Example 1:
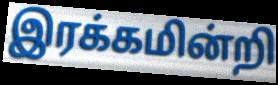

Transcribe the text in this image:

இரக்கமின்றி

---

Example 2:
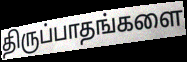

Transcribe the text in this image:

திருப்பாதங்களை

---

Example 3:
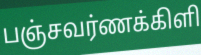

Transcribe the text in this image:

பஞ்சவர்ணக்கிளி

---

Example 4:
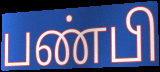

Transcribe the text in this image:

பண்பி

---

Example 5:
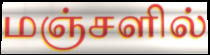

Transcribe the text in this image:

மஞ்சளில்